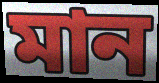
মান